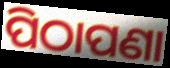
ପିଠାପଣା